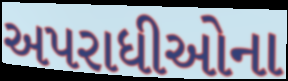
અપરાધીઓના